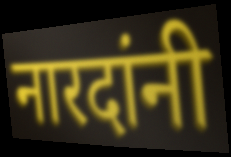
नारदांनी